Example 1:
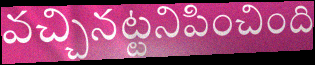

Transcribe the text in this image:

వచ్చినట్టనిపించింది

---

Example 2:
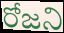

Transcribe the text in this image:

రోజని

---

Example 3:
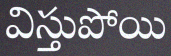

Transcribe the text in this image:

విస్తుపోయి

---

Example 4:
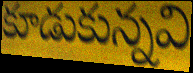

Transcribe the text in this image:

కూడుకున్నవి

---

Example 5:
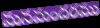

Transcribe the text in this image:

మనమందరము